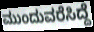
ಮುಂದುವರೆಸಿದ್ದೆ